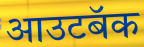
आउटबॅक